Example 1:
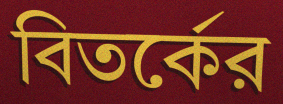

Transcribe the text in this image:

বিতর্কের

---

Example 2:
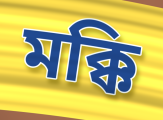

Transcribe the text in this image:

মক্কি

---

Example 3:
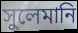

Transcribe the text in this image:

সুলেমানি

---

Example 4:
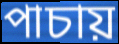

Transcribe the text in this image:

পাচায়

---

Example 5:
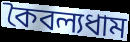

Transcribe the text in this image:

কৈবল্যধাম